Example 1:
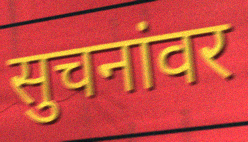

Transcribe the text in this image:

सुचनांवर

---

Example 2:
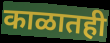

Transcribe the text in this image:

काळातही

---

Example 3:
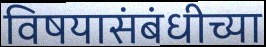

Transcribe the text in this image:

विषयासंबंधीच्या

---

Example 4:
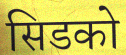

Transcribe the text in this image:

सिडको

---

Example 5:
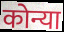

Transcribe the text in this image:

कोन्या